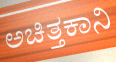
ಅಚಿತ್ತಕಾನಿ